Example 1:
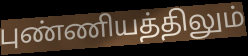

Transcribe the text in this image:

புண்ணியத்திலும்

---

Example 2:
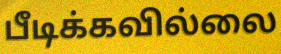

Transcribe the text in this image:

பீடிக்கவில்லை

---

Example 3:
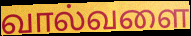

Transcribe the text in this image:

வால்வளை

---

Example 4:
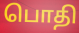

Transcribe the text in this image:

பொதி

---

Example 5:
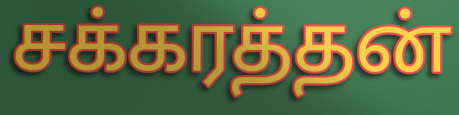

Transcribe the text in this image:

சக்கரத்தன்